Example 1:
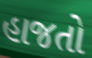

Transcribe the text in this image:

હાજતો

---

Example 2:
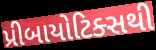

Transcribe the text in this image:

પ્રીબાયોટિક્સથી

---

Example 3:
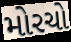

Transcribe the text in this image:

મોરચો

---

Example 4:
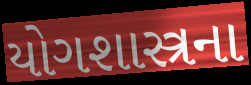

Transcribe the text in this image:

યોગશાસ્ત્રના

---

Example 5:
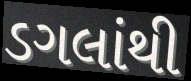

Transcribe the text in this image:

ડગલાંથી